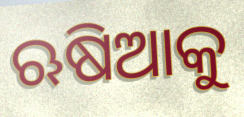
ଋଷିଆକୁ